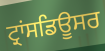
ਟ੍ਰਾਂਸਡਿਊਸਰ